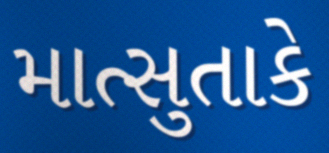
માત્સુતાકે